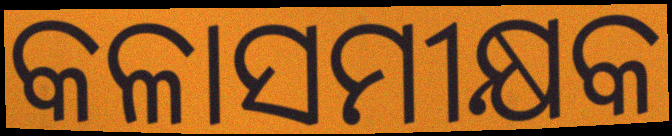
କଳାସମୀକ୍ଷକ